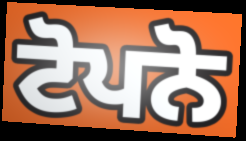
ਟੋਪਨੋ